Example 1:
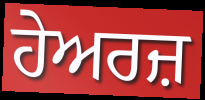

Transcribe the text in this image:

ਹੇਅਰਜ਼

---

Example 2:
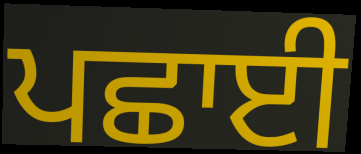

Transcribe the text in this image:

ਪਛਾਈ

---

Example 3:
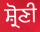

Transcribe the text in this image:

ਸ਼੍ਰੋਣੀ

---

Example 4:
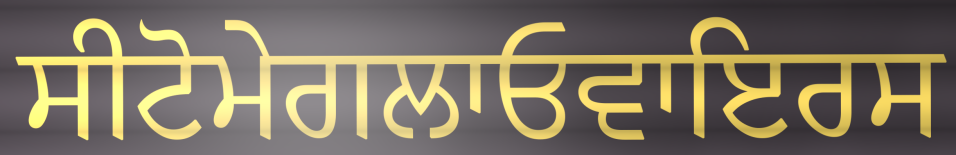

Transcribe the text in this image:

ਸੀਟੋਮੇਗਲਾਓਵਾਇਰਸ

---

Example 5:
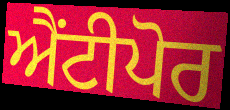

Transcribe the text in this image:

ਐਂਟੀਪੋਰ